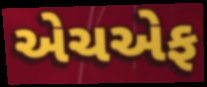
એચએફ